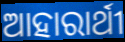
ଆହାରାର୍ଥୀ